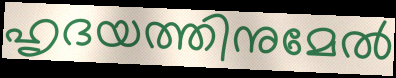
ഹൃദയത്തിനുമേൽ